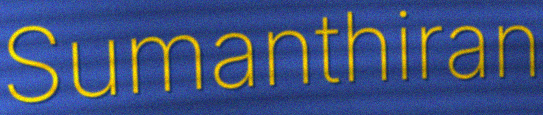
Sumanthiran